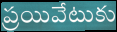
ప్రయివేటుకు